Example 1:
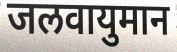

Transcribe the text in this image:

जलवायुमान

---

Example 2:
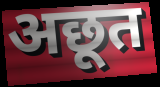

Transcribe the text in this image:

अछूत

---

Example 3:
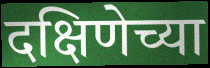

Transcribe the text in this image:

दक्षिणेच्या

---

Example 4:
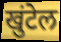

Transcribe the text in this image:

खुंटेल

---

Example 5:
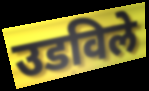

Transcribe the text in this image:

उडविले